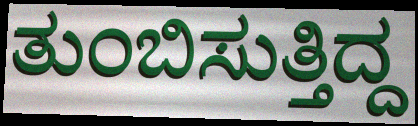
ತುಂಬಿಸುತ್ತಿದ್ದ